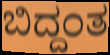
ಬಿದ್ದಂತ